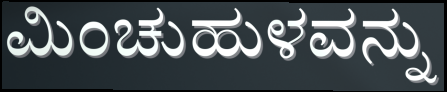
ಮಿಂಚುಹುಳವನ್ನು